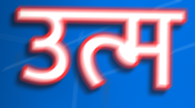
उत्म